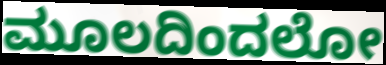
ಮೂಲದಿಂದಲೋ